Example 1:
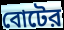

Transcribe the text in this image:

বোটের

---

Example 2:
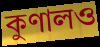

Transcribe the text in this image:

কুণালও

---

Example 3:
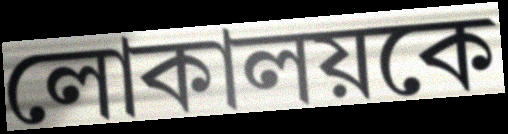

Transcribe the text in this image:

লোকালয়কে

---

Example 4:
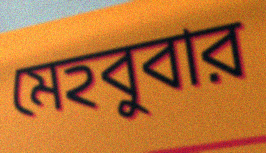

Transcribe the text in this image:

মেহবুবার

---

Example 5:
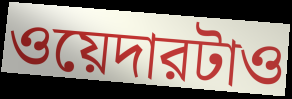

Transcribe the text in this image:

ওয়েদারটাও